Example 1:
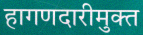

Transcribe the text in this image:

हागणदारीमुक्त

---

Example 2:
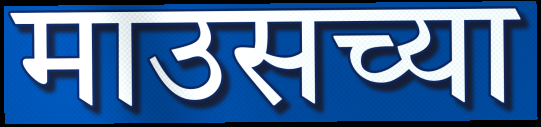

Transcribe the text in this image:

माउसच्या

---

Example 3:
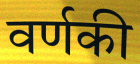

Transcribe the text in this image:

वर्णकी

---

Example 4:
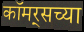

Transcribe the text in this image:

कॉमर्सच्या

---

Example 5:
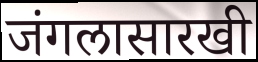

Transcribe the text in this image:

जंगलासारखी